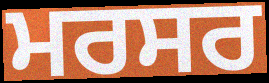
ਮਰਸਰ